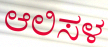
ಆಲಿಸಳ